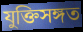
যুক্তিসঙ্গত